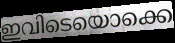
ഇവിടെയൊക്കെ